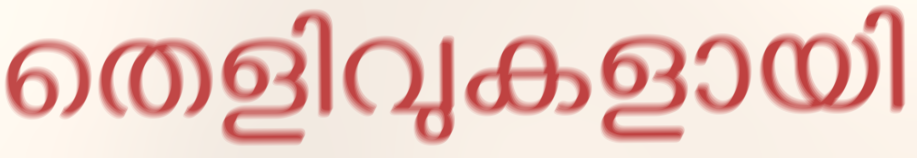
തെളിവുകളായി